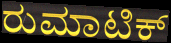
ರುಮಾಟಿಕ್